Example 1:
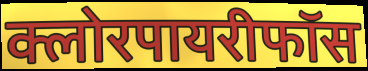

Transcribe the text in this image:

क्लोरपायरीफॉस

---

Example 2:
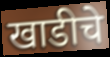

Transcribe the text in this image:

खाडीचे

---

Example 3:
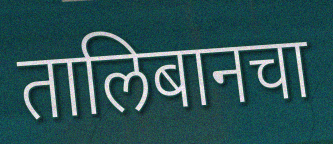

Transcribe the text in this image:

तालिबानचा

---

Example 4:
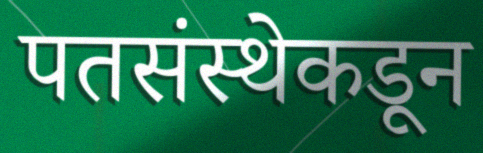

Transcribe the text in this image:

पतसंस्थेकडून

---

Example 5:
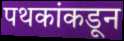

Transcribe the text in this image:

पथकांकडून